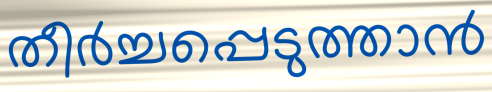
തീർച്ചപ്പെടുത്താൻ